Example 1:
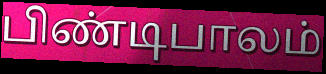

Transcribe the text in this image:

பிண்டிபாலம்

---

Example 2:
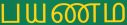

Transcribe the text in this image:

பயணம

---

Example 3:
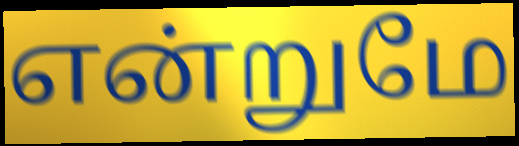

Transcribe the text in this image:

என்றுமே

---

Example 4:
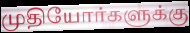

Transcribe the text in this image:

முதியோர்களுக்கு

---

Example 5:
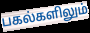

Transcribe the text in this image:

பகல்களிலும்